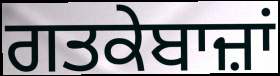
ਗਤਕੇਬਾਜ਼ਾਂ